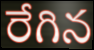
రేగిన